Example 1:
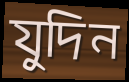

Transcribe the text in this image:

যুদিন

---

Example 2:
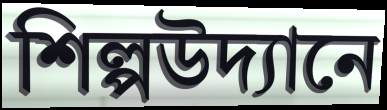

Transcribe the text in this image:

শিল্পউদ্যানে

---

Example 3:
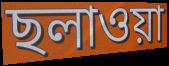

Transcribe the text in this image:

ছলাওয়া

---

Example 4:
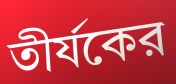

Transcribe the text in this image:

তীর্যকের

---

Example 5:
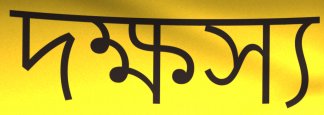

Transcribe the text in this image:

দক্ষস্য